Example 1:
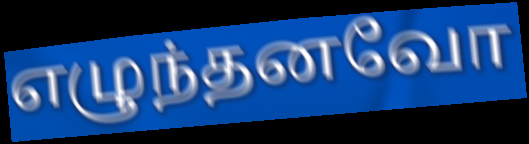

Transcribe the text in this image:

எழுந்தனவோ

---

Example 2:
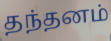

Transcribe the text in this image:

தந்தனம்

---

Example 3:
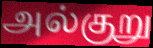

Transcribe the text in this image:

அல்குறு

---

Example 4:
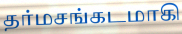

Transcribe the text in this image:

தர்மசங்கடமாகி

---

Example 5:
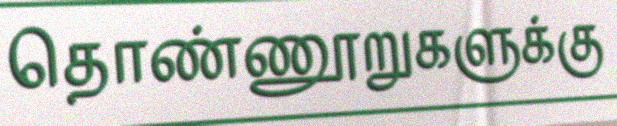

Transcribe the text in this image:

தொண்ணூறுகளுக்கு